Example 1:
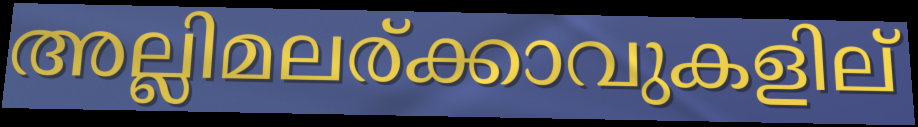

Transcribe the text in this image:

അല്ലിമലര്ക്കാവുകളില്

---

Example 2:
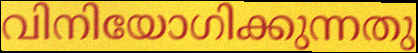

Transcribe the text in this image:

വിനിയോഗിക്കുന്നതു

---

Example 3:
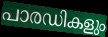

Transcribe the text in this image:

പാരഡികളും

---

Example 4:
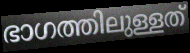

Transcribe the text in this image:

ഭാഗത്തിലുള്ളത്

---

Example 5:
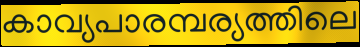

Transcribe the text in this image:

കാവ്യപാരമ്പര്യത്തിലെ